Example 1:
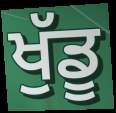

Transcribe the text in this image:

ਖੁੱਡੂ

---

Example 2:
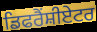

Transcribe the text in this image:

ਡਿਫਰੈਂਸ਼ੀਏਟਰ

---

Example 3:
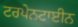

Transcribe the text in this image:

ਟਰਪੇਨਟਾਈਨ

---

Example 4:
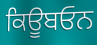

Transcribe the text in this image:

ਕਿਊਬਓਨ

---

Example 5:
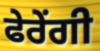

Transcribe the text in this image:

ਫੇਰੇਂਗੀ